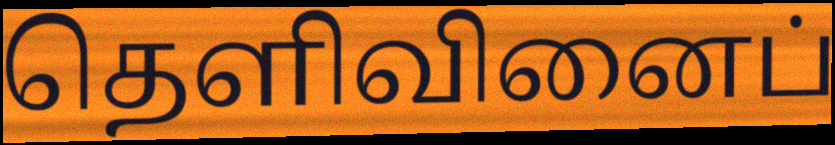
தெளிவினைப்